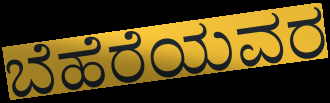
ಬೆಹೆರೆಯವರ